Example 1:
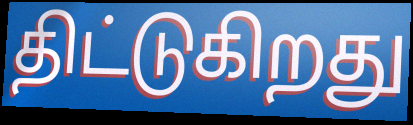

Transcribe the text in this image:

திட்டுகிறது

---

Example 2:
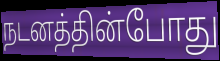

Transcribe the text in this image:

நடனத்தின்போது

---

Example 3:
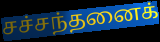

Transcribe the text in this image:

சச்சந்தனைக்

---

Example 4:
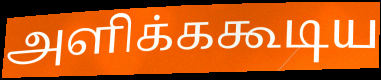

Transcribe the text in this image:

அளிக்ககூடிய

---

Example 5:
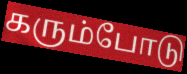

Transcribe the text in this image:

கரும்போடு